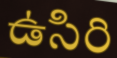
ఉసిరి